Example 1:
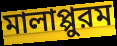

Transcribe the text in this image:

মালাপ্পুরম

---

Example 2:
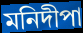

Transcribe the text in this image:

মনিদীপা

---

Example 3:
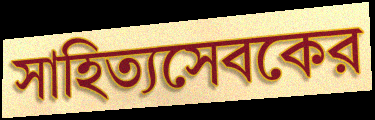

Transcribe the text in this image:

সাহিত্যসেবকের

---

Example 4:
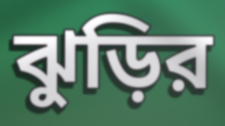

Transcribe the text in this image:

ঝুড়ির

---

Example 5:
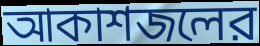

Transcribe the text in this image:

আকাশজলের